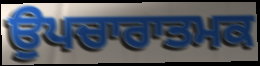
ਉਪਚਾਰਾਤਮਕ